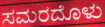
ಸಮರದೊಳು